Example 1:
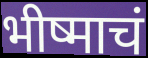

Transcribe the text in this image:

भीष्माचं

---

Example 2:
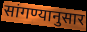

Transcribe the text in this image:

सांगण्यानुसार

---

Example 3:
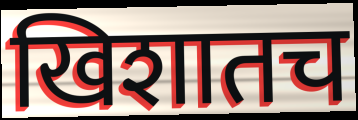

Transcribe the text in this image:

खिशातच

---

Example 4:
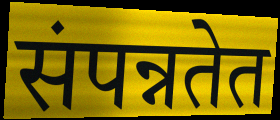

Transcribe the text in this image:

संपन्नतेत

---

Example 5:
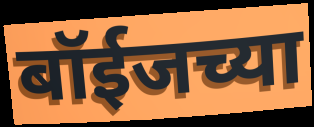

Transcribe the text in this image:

बॉईजच्या